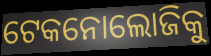
ଟେକନୋଲୋଜିକୁ